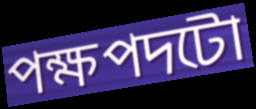
পক্ষপদটো